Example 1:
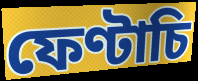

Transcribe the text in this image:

ফেণ্টাচি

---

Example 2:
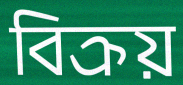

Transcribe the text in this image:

বিক্ৰয়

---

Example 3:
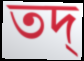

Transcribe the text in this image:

তদ্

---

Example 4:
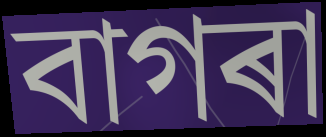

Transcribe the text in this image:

বাগৰা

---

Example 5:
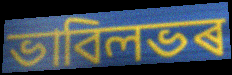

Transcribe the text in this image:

ভাবিলভৰ